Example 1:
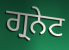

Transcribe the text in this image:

ਗ੍ਰਨੇਟ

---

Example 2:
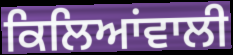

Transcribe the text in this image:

ਕਿਲਿਆਂਵਾਲੀ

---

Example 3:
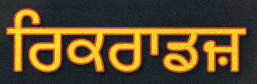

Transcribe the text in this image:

ਰਿਕਰਾਡਜ਼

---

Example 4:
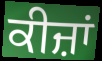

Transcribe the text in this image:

ਕੀਜ਼ਾਂ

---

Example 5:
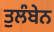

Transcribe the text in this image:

ਤੁਲੰਬੇਨ